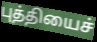
புத்தியைச்